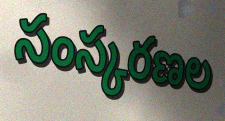
సంస్కరణల